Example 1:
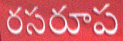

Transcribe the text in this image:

రసరూప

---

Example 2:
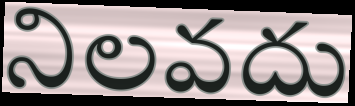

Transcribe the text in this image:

నిలవదు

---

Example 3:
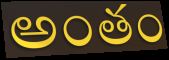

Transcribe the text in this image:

అంతం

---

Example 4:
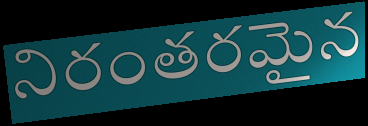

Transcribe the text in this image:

నిరంతరమైన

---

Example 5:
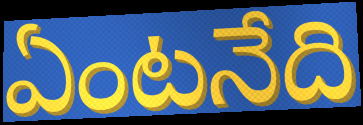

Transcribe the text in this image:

ఏంటనేది